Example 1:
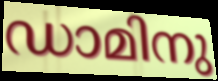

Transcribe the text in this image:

ഡാമിനു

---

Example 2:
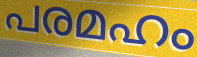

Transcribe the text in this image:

പരമഹം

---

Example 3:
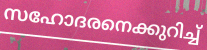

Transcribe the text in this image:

സഹോദരനെക്കുറിച്ച്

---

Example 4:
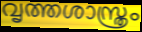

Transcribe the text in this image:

വൃത്തശാസ്ത്രം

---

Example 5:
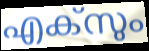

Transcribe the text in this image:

എക്‌സും